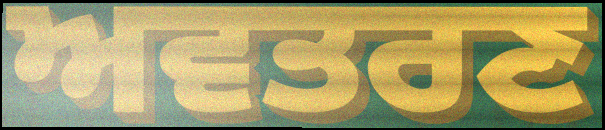
ਅਵਤਰਣ